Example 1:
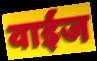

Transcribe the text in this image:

वाईज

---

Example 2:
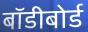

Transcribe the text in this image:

बॉडीबोर्ड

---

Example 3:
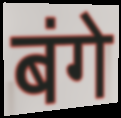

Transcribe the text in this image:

बंगे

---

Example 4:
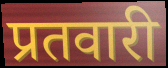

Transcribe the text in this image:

प्रतवारी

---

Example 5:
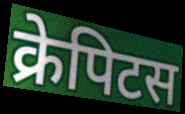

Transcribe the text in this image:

क्रेपिटस